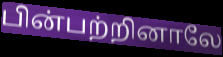
பின்பற்றினாலே